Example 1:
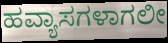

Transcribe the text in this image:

ಹವ್ಯಾಸಗಳಾಗಲೀ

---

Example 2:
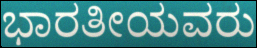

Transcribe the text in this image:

ಭಾರತೀಯವರು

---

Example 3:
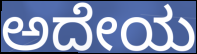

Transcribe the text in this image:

ಅದೇಯ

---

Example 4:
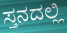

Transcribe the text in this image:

ಸ್ತನದಲ್ಲಿ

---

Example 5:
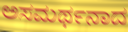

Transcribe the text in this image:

ಅಸಮರ್ಥನಾದ